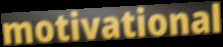
motivational